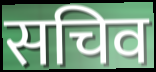
सचिव